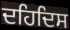
ਦਹਿਦਿਸ